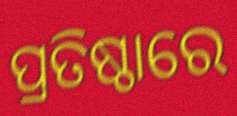
ପ୍ରତିଷ୍ଠାରେ